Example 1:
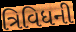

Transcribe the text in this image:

ત્રિવિધની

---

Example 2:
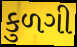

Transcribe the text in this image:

કુળગી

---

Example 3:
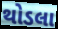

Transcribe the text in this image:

થોડલા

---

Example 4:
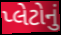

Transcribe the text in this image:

પ્લેટોનું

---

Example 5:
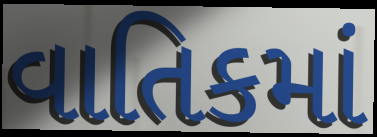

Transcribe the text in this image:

વાતિકમાં